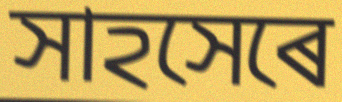
সাহসেৰে